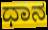
ಧಾನ